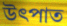
উৎপাত